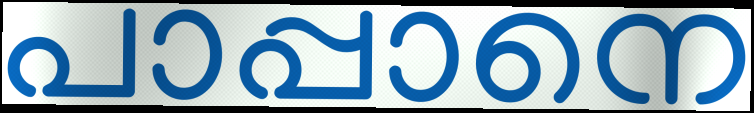
പാപ്പാനെ